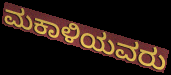
ಮಕಾಳಿಯವರು